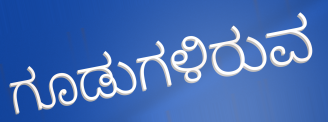
ಗೂಡುಗಳಿರುವ